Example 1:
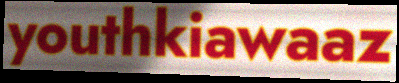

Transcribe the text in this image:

youthkiawaaz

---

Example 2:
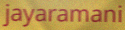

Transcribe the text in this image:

jayaramani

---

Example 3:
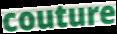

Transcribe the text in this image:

couture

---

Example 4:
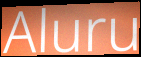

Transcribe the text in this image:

Aluru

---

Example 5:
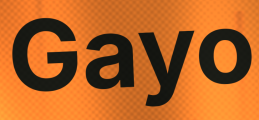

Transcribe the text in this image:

Gayo